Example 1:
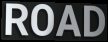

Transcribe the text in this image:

ROAD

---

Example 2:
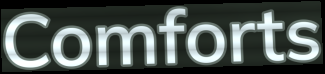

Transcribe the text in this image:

Comforts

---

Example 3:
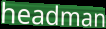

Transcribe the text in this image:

headman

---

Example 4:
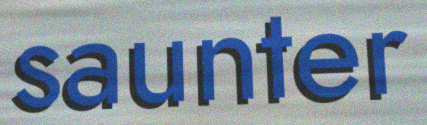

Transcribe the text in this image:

saunter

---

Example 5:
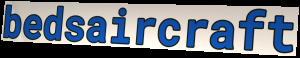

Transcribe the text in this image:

bedsaircraft